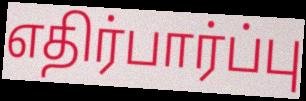
எதிர்பார்ப்பு